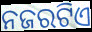
ନଜରଟିଏ